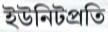
ইউনিটপ্রতি